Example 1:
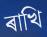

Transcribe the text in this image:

ৰাখি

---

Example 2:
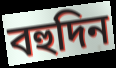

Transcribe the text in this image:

বহুদিন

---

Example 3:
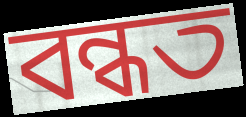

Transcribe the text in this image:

বন্ধত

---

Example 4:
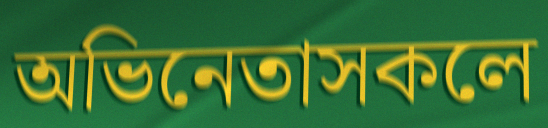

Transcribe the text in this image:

অভিনেতাসকলে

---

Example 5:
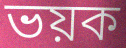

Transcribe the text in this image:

ভয়ক